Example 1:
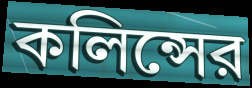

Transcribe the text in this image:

কলিন্সের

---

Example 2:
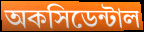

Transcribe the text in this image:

অকসিডেন্টাল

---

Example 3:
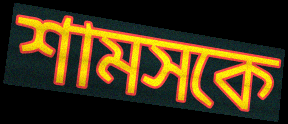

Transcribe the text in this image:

শামসকে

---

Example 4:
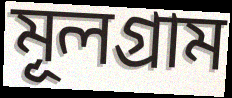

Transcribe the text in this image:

মূলগ্রাম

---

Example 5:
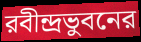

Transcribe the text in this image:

রবীন্দ্রভুবনের